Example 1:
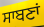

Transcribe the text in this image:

ਸਾਬਣਾਂ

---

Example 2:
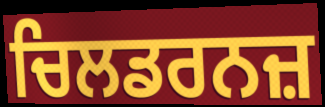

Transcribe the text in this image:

ਚਿਲਡਰਨਜ਼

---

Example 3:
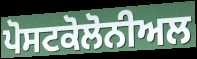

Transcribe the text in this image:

ਪੋਸਟਕੋਲੋਨੀਅਲ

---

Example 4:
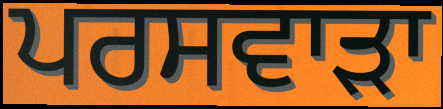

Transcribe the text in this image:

ਪਰਸਵਾੜਾ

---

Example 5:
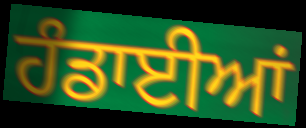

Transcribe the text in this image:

ਹੰਡਾਈਆਂ